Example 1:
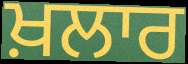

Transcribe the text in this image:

ਖ਼ਲਾਰ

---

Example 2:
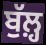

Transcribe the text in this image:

ਬੁੱਲ਼੍ਹ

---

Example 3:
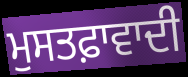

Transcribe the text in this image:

ਮੁਸਤਫ਼ਾਵਾਦੀ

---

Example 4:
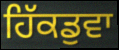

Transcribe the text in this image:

ਹਿੱਕਡੁਵਾ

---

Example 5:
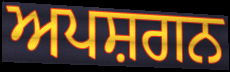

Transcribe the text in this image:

ਅਪਸ਼ਗਨ